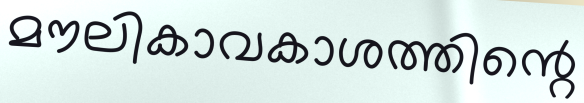
മൗലികാവകാശത്തിന്റെ